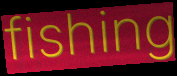
fishing